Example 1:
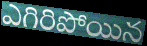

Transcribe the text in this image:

ఎగిరిపోయిన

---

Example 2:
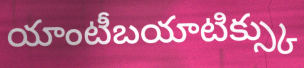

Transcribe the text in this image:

యాంటీబయాటిక్స్కు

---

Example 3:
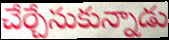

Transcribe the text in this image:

చేర్చేసుకున్నాడు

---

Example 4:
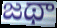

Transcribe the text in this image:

జథా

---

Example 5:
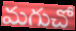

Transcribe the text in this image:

మగుచో